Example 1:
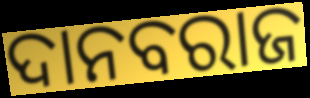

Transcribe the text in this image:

ଦାନବରାଜ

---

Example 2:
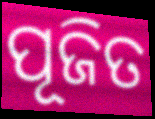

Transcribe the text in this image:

ପୂଜିତ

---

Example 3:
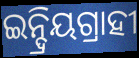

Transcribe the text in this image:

ଇନ୍ଦ୍ରିୟଗ୍ରାହୀ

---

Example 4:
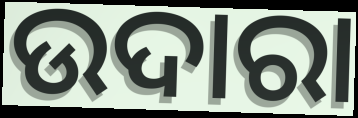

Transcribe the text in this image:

ଉଦାରା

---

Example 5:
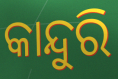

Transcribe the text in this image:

କାନ୍ଦୁରି